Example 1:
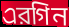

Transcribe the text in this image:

এরগিন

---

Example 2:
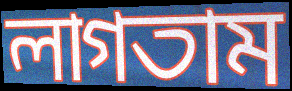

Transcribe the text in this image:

লাগতাম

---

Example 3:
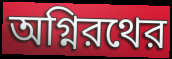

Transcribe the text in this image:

অগ্নিরথের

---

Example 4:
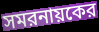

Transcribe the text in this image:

সমরনায়কের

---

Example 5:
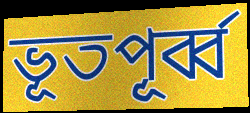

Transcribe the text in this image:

ভূতপূর্ব্ব